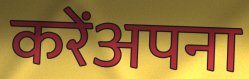
करेंअपना